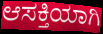
ಆಸಕ್ತಿಯಾಗಿ